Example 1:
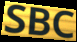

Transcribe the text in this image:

SBC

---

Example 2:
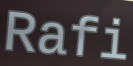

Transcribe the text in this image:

Rafi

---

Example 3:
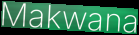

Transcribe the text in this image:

Makwana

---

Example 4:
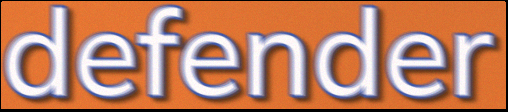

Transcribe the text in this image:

defender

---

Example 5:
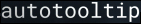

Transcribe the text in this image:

autotooltip